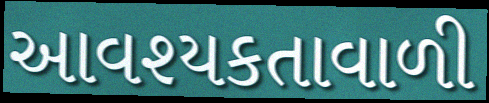
આવશ્યકતાવાળી